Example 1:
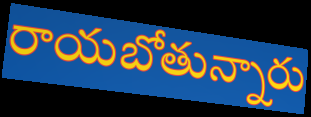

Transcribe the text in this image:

రాయబోతున్నారు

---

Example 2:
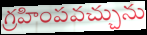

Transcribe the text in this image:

గ్రహింపవచ్చును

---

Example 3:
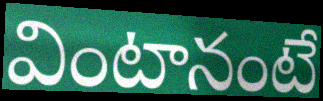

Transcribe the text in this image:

వింటానంటే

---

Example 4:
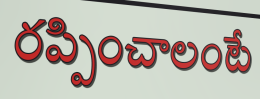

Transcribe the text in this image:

రప్పించాలంటే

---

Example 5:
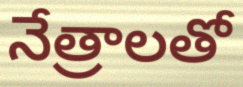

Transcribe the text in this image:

నేత్రాలతో